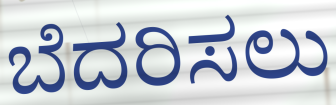
ಬೆದರಿಸಲು